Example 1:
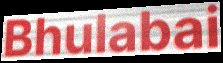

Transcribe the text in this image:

Bhulabai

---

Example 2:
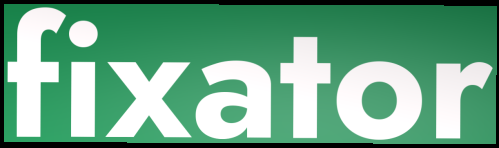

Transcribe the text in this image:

fixator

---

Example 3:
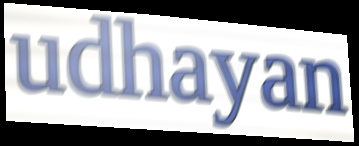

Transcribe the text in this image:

udhayan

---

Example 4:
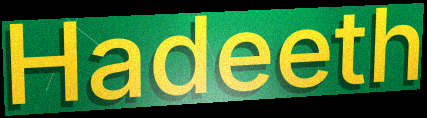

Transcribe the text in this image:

Hadeeth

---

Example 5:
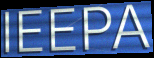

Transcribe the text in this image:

IEEPA